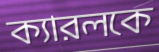
ক্যারলকে